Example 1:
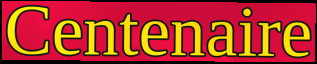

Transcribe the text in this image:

Centenaire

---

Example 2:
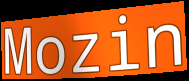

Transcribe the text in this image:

Mozin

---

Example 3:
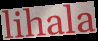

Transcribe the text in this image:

lihala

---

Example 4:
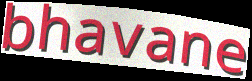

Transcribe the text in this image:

bhavane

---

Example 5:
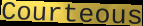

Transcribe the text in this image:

Courteous